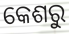
କେଶରୁ